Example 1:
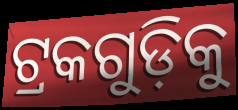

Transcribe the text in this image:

ଟ୍ରକଗୁଡ଼ିକୁ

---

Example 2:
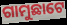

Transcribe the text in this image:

ଗାମୁଛାଟେ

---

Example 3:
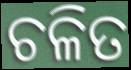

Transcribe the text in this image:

ଚଳିତ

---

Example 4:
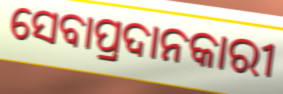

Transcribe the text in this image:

ସେବାପ୍ରଦାନକାରୀ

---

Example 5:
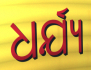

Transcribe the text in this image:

ଧର୍ଯ୍ୟ